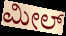
ಮೀಲ್